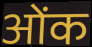
ओंक